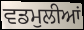
ਵਡਮੁਲੀਆਂ